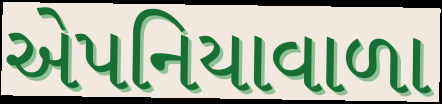
એપનિયાવાળા